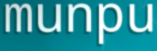
munpu